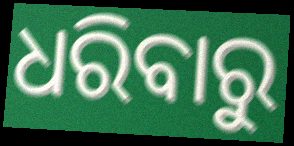
ଧରିବାରୁ